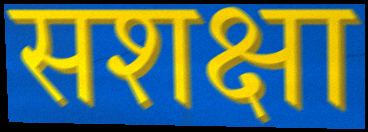
सशक्षा